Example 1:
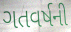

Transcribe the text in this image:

ગતવર્ષની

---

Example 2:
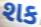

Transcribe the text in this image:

શક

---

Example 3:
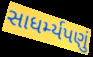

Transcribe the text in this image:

સાધર્મ્યપણું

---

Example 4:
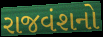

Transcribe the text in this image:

રાજવંશનો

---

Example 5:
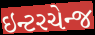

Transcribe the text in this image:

ઇન્ટરચેન્જ